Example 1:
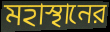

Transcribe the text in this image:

মহাস্থানের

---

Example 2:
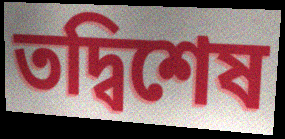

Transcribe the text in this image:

তদ্বিশেষ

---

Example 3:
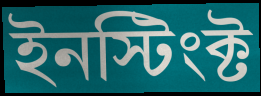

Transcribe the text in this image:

ইনস্টিংক্ট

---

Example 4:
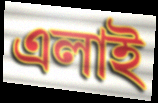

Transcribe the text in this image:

এলাই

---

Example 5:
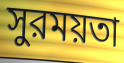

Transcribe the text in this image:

সুরময়তা